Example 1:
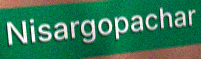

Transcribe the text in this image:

Nisargopachar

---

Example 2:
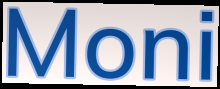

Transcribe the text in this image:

Moni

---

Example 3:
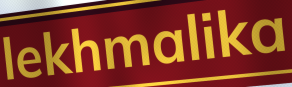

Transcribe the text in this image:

lekhmalika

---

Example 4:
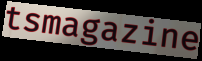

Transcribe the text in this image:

tsmagazine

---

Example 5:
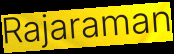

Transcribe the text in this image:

Rajaraman